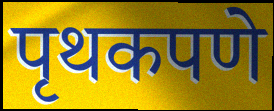
पृथकपणे